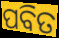
ପବିତ